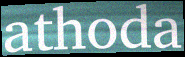
athoda